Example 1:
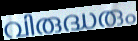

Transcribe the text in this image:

വിരുദ്ധരും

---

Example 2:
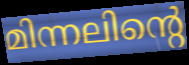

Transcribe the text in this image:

മിന്നലിന്റെ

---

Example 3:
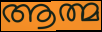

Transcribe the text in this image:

ആത്മ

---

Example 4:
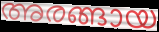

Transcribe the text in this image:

അരങ്ങായ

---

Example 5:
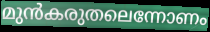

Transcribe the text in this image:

മുൻകരുതലെന്നോണം